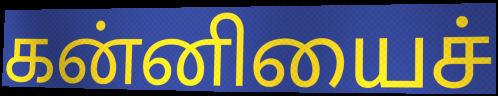
கன்னியைச்